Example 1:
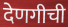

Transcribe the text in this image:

देणगीची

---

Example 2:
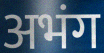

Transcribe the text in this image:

अभंग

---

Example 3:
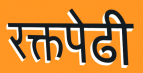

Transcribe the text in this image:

रक्तपेढी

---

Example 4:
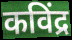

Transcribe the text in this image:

कविंद्र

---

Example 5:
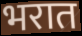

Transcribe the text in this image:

भरात